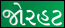
જોરહટ